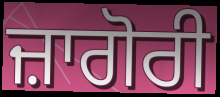
ਜ਼ਾਗੋਰੀ